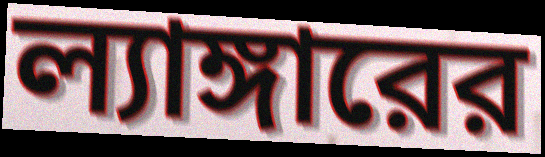
ল্যাঙ্গারের